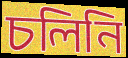
চলিনি